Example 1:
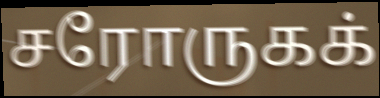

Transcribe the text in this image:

சரோருகக்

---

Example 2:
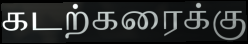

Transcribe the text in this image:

கடற்கரைக்கு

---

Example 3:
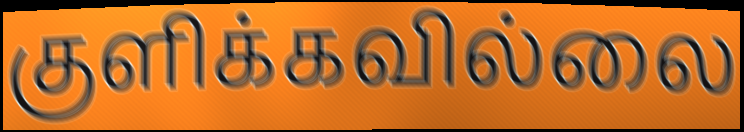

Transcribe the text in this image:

குளிக்கவில்லை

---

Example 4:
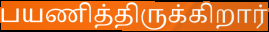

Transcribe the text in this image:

பயணித்திருக்கிறார்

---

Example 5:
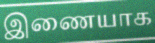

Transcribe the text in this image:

இணையாக